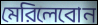
মেরিলেবোন